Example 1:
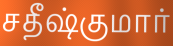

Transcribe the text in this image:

சதீஷ்குமார்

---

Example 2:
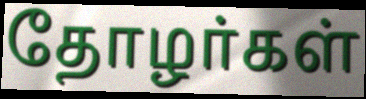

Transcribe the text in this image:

தோழர்கள்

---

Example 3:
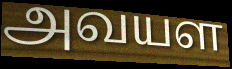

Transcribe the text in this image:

அவயள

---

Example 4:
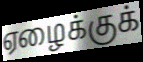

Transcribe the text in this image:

ஏழைக்குக்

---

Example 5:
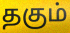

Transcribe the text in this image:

தகும்